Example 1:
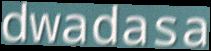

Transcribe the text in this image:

dwadasa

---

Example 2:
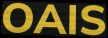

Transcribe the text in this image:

OAIS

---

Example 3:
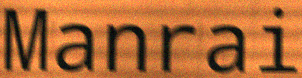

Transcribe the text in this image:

Manrai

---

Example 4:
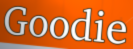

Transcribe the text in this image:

Goodie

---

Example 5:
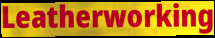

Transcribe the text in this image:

Leatherworking